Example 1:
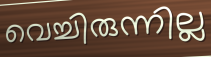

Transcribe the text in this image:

വെച്ചിരുന്നില്ല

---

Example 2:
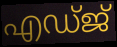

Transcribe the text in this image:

എഡ്ജ്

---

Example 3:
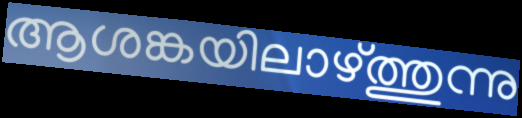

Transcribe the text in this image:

ആശങ്കയിലാഴ്ത്തുന്നു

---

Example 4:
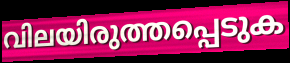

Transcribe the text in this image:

വിലയിരുത്തപ്പെടുക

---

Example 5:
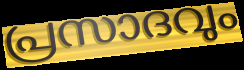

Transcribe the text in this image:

പ്രസാദവും